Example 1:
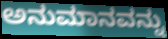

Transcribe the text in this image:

ಅನುಮಾನವನ್ನು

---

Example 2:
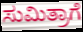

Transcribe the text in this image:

ಸುಮಿತ್ರಾಗೆ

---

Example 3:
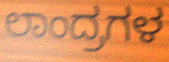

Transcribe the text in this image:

ಲಾಂದ್ರಗಳ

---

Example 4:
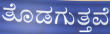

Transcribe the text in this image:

ತೊಡಗುತ್ತವೆ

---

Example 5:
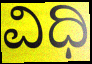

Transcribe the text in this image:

ವಿಧಿ